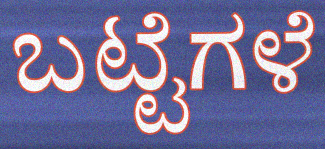
ಬಟ್ಟೆಗಳೆ